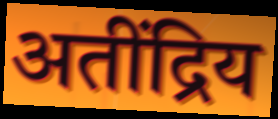
अतींद्रिय